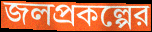
জলপ্রকল্পের